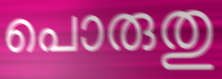
പൊരുതു